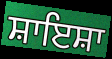
ਸ਼ਾਇਸ਼ਾ